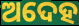
ଅଦେହ